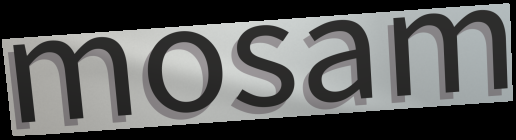
mosam